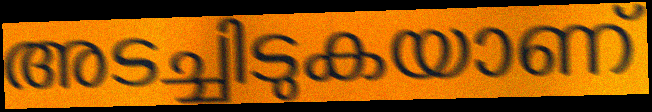
അടച്ചിടുകയാണ്